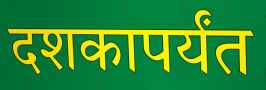
दशकापर्यंत